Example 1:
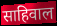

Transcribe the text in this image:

साहिवाल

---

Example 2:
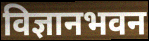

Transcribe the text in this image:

विज्ञानभवन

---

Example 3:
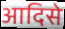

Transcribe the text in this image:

आदिसे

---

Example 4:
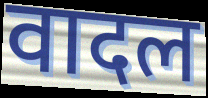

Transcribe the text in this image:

वादल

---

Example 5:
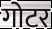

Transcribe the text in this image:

गोटर